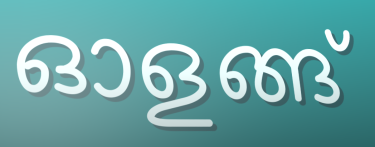
ഓളങ്ങ്